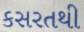
કસરતથી